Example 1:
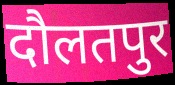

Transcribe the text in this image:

दौलतपुर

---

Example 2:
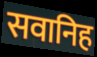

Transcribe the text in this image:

सवानिह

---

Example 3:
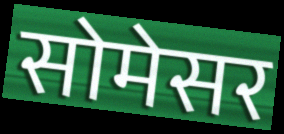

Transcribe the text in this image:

सोमेसर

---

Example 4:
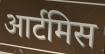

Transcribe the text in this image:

आर्टमिस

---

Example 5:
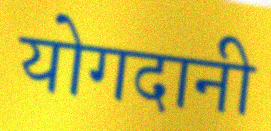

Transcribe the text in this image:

योगदानी